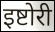
इष्टोरी